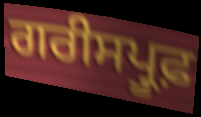
ਗਰੀਸਪ੍ਰੂਫ਼